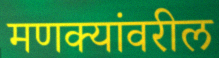
मणक्यांवरील